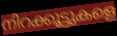
നിറക്കൂട്ടുകളെ